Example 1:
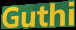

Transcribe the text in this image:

Guthi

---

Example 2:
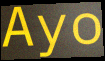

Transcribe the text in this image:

Ayo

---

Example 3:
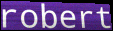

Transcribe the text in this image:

robert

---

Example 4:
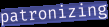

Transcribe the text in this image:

patronizing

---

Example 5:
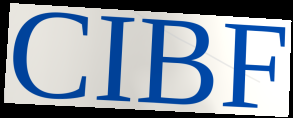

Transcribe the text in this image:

CIBF